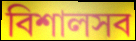
বিশালসব